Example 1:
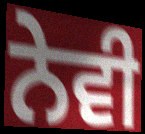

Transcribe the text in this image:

ਨੇਵੀ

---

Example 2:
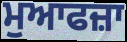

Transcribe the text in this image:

ਮੁਆਫਜ਼ਾ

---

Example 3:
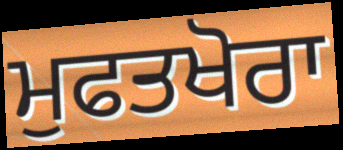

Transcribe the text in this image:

ਮੁਫਤਖੋਰਾ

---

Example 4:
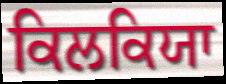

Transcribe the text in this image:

ਕਿਲਕਿਯਾ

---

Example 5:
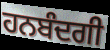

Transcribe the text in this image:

ਹਨਬੰਦਗੀ